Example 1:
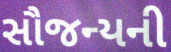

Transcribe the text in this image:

સૌજન્યની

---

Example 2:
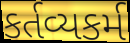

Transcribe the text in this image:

કર્તવ્યકર્મ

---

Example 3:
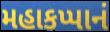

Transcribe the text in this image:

મહાકપ્પાનં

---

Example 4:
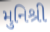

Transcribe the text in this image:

મુનિશ્રી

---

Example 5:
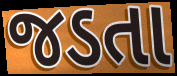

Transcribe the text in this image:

જડતા